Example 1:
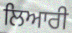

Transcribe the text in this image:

ਲਿਆਰੀ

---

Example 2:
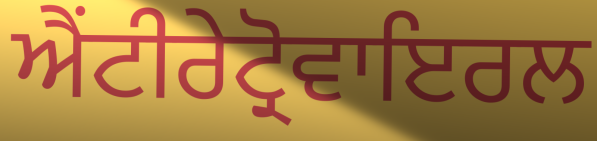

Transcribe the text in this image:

ਐਂਟੀਰੇਟ੍ਰੋਵਾਇਰਲ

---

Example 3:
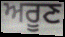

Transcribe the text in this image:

ਅਰੂਣ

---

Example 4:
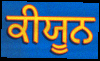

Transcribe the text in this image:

ਕੀਯੂਨ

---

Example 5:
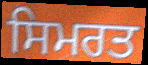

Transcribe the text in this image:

ਸਿਮਰਤ